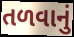
તળવાનું